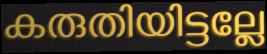
കരുതിയിട്ടല്ലേ